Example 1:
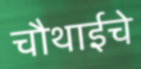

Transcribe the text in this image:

चौथाईचे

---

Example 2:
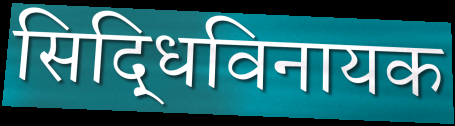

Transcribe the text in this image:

सिद्धिविनायक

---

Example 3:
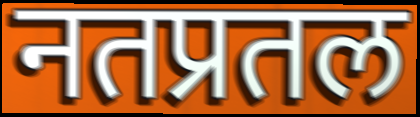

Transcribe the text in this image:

नतप्रतल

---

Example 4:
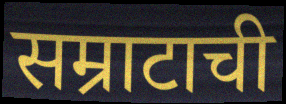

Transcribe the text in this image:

सम्राटाची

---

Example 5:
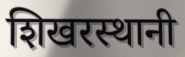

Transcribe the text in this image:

शिखरस्थानी